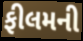
ફીલમની